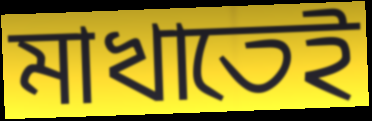
মাখাতেই